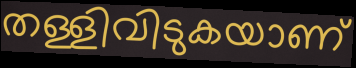
തള്ളിവിടുകയാണ്